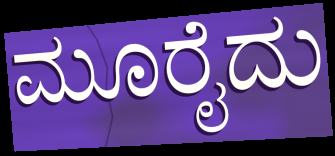
ಮೂರೈದು